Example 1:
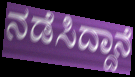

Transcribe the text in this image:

ನಡೆಸಿದ್ದಾನೆ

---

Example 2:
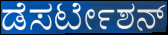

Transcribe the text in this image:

ಡೆಸರ್ಟೇಶನ್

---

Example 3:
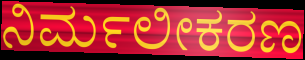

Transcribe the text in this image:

ನಿರ್ಮಲೀಕರಣ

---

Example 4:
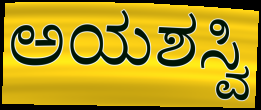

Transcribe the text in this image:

ಅಯಶಸ್ವಿ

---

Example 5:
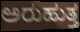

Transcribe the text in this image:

ಅರುಹುತ್ತ